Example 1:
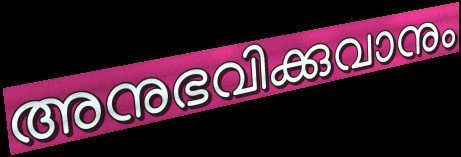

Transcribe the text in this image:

അനുഭവിക്കുവാനും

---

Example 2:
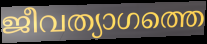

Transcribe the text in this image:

ജീവത്യാഗത്തെ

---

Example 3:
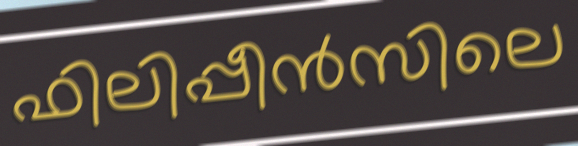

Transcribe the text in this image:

ഫിലിപ്പീൻസിലെ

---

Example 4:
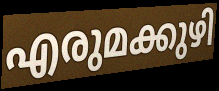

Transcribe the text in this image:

എരുമക്കുഴി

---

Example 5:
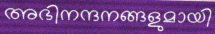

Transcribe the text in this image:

അഭിനന്ദനങ്ങളുമായി